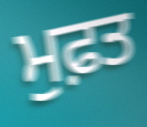
ਮੁਫ਼ਤ